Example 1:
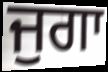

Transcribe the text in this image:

ਜੁਗਾ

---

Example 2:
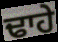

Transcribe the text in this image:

ਢਾਹੇ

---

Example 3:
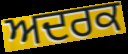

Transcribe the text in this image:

ਅਦਰਕ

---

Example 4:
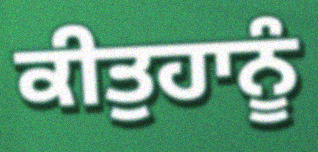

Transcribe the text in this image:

ਕੀਤੁਹਾਨੂੰ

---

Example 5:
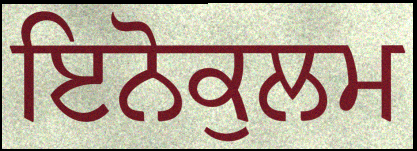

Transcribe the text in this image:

ਇਨੋਕੁਲਮ